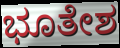
ಭೂತೇಶ